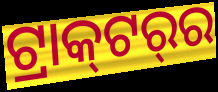
ଟ୍ରାକ୍‍ଟର୍‍ର